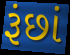
રૂંછાં